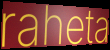
raheta